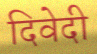
दिवेदी